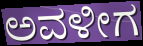
ಅವಳೀಗ